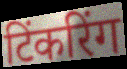
टिंकरिंग